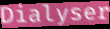
Dialyser